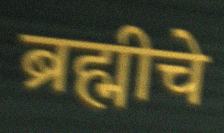
ब्रह्मीचे